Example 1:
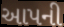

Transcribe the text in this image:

આપની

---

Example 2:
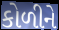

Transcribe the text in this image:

કોળીને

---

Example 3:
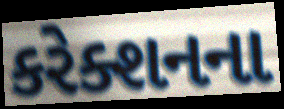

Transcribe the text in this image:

કરેક્શનના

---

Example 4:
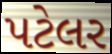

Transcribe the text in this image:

પટેલર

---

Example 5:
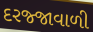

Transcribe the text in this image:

દરજ્જાવાળી